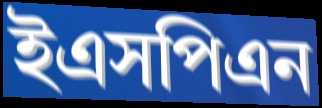
ইএসপিএন